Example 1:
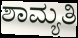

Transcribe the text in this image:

ಶಾಮ್ಯತಿ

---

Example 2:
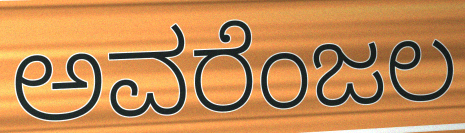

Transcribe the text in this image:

ಅವರೆಂಜಲ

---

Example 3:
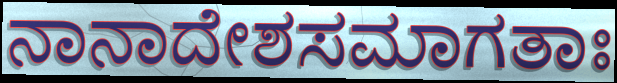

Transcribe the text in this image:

ನಾನಾದೇಶಸಮಾಗತಾಃ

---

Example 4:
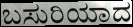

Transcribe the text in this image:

ಬಸುರಿಯಾದ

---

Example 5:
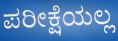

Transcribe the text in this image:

ಪರೀಕ್ಷೆಯಲ್ಲ